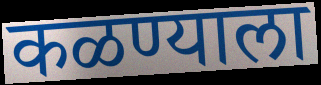
कळण्याला